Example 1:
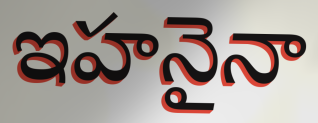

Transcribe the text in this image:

ఇహనైనా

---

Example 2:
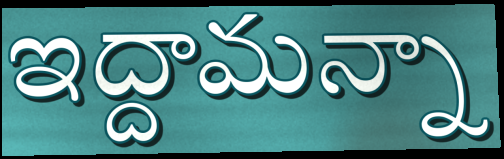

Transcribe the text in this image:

ఇద్దామన్నా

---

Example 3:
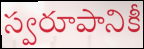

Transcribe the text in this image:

స్వరూపానికీ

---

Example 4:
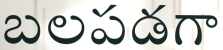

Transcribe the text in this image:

బలపడగా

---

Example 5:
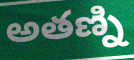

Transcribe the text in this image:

అతణ్ని